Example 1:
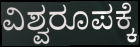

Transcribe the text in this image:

ವಿಶ್ವರೂಪಕ್ಕೆ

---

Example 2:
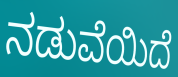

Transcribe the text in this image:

ನಡುವೆಯಿದೆ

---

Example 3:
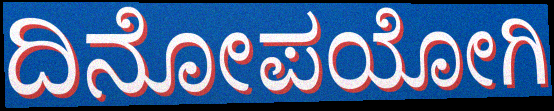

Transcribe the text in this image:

ದಿನೋಪಯೋಗಿ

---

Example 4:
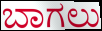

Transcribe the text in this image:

ಬಾಗಲು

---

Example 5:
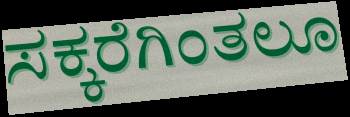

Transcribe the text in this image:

ಸಕ್ಕರೆಗಿಂತಲೂ